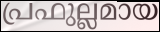
പ്രഫുല്ലമായ